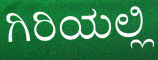
ಗಿರಿಯಲ್ಲಿ